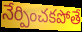
నేర్పించకపోతే